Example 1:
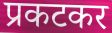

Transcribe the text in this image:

प्रकटकर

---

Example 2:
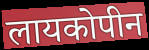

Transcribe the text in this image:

लायकोपीन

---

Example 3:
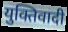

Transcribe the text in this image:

युक्तिवादी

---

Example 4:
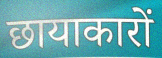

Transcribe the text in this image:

छायाकारों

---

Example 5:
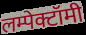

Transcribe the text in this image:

लम्पेक्टॉमी